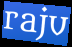
raju